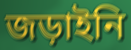
জড়াইনি